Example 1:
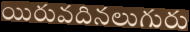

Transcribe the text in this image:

యిరువదినలుగురు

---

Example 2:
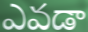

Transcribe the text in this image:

ఎవడా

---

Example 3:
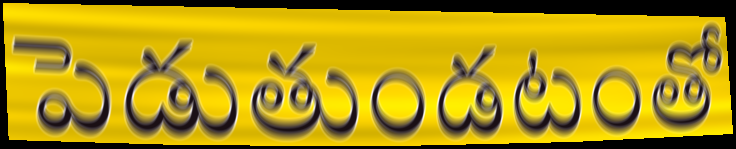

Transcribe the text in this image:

పెడుతుండటంతో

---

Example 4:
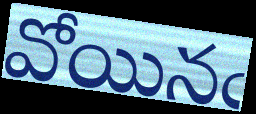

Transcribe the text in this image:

వోయినఁ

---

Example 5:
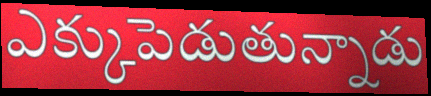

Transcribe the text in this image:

ఎక్కుపెడుతున్నాడు